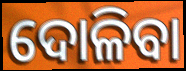
ଦୋଳିବା